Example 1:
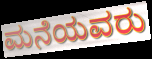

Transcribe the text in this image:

ಮನೆಯವರು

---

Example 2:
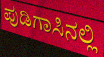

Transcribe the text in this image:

ಪುಡಿಗಾಸಿನಲ್ಲಿ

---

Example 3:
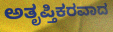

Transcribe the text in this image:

ಅತೃಪ್ತಿಕರವಾದ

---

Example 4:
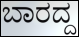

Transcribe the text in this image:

ಬಾರದ್ದ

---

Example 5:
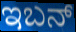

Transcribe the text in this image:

ಇಬನ್